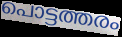
പൊട്ടത്തരം